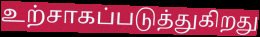
உற்சாகப்படுத்துகிறது